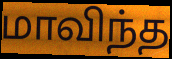
மாவிந்த